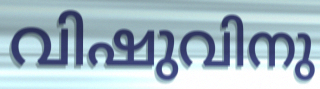
വിഷുവിനു